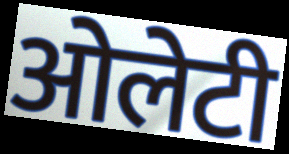
ओलेटी